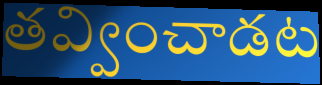
తవ్వించాడట